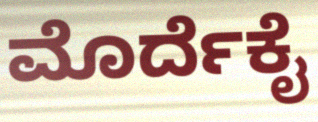
ಮೊರ್ದೆಕೈ